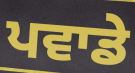
ਪਵਾਡੇ